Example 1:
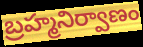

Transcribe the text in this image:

బ్రహ్మనిర్వాణం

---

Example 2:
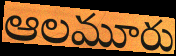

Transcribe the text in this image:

ఆలమూరు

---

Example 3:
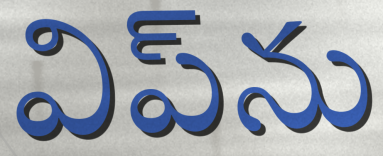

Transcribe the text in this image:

విప్‌ను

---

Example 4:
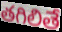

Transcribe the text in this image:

తగిలితే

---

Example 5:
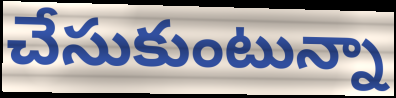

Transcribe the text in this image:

చేసుకుంటున్నా